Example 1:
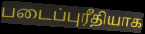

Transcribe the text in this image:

படைப்புரீதியாக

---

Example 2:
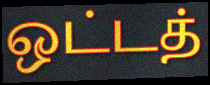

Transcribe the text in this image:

ஒட்டத்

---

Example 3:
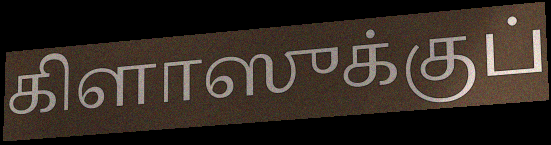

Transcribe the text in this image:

கிளாஸுக்குப்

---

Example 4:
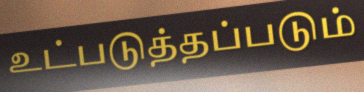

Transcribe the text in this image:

உட்படுத்தப்படும்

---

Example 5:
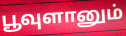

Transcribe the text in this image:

பூவுளானும்